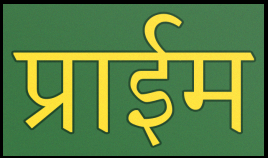
प्राईम